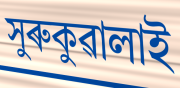
সুৰুকুৱালাই